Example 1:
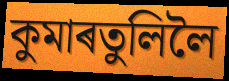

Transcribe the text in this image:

কুমাৰতুলিলৈ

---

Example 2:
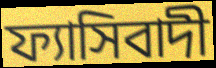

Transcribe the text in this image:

ফ্যাসিবাদী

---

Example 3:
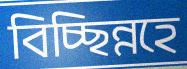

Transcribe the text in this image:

বিচ্ছিন্নহে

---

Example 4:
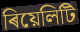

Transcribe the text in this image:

ৰিয়েলিটি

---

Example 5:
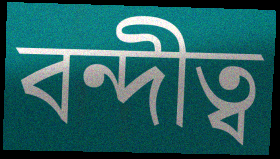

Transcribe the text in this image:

বন্দীত্ব